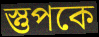
স্তুপকে